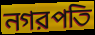
নগরপতি